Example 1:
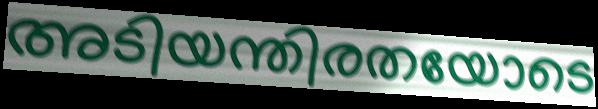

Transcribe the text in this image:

അടിയന്തിരതയോടെ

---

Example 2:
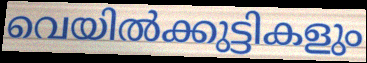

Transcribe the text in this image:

വെയിൽക്കുട്ടികളും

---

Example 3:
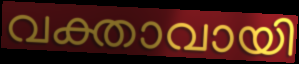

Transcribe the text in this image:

വക്താവായി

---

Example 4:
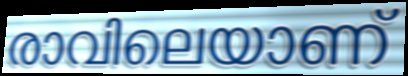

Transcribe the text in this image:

രാവിലെയാണ്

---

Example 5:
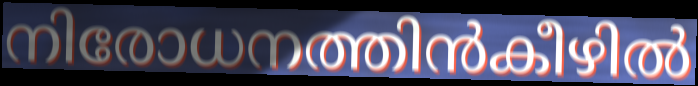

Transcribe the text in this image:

നിരോധനത്തിൻകീഴിൽ